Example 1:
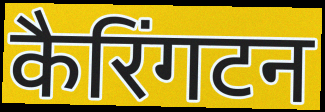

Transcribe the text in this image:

कैरिंगटन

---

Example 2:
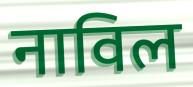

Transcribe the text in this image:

नाविल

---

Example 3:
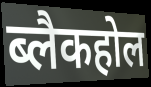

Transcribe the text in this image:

ब्लैकहोल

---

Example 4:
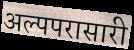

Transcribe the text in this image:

अल्पपरासारी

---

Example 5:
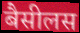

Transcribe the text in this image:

बैसीलस